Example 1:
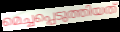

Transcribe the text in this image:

മെച്ചപ്പെടുത്തിയത്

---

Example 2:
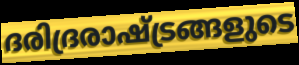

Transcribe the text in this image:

ദരിദ്രരാഷ്ട്രങ്ങളുടെ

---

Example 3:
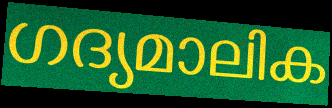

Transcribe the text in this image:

ഗദ്യമാലിക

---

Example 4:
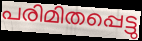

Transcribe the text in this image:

പരിമിതപ്പെട്ടു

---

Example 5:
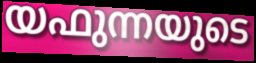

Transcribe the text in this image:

യഫുന്നയുടെ